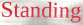
Standing